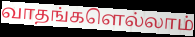
வாதங்களெல்லாம்